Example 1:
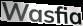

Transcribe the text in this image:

Wasfia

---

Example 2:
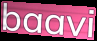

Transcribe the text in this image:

baavi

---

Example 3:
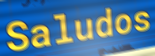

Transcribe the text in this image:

Saludos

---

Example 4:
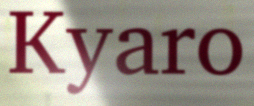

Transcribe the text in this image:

Kyaro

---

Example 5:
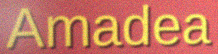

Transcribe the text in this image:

Amadea